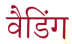
वैडिंग